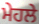
ਮੇਹਲੇ